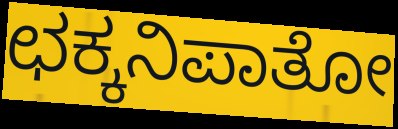
ಛಕ್ಕನಿಪಾತೋ